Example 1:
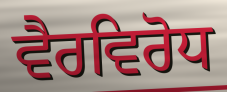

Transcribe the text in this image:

ਵੈਰਵਿਰੋਧ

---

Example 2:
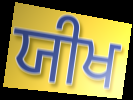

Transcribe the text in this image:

ਯੀਖ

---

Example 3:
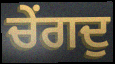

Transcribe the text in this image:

ਚੇਂਗਦੁ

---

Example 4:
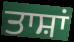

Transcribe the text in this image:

ਤਾਸ਼ਾਂ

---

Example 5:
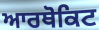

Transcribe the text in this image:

ਆਰਥੋਕਿਟ